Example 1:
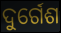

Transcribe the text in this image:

ଦୁର୍ଗେଶ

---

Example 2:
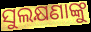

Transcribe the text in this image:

ସୁଲକ୍ଷଣାଙ୍କୁ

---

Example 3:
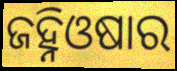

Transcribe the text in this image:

ଜହ୍ନିଓଷାର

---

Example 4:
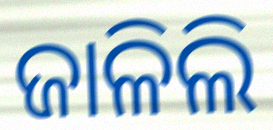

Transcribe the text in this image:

ଜାଳିଲି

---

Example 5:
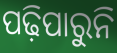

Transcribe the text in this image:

ପଢ଼ିପାରୁନି